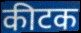
कीटक